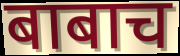
बाबाच